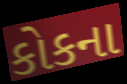
કોકના